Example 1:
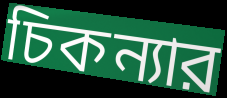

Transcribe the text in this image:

চিকন্যার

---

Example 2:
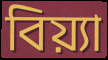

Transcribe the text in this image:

বিয়্যা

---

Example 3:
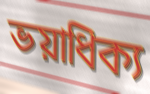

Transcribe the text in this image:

ভয়াধিক্য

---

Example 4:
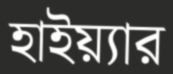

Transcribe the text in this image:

হাইয়্যার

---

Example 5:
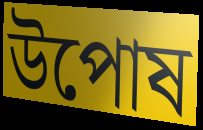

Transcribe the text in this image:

উপোষ